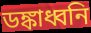
ডঙ্কাধ্বনি